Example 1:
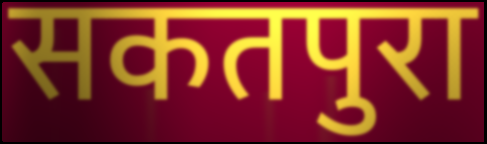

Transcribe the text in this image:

सकतपुरा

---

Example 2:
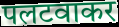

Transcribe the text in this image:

पलटवाकर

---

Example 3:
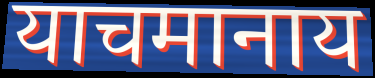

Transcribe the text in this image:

याचमानाय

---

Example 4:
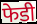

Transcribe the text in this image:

फेडी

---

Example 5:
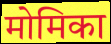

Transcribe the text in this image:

मोमिका